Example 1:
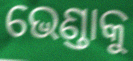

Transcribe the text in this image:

ଭେଣ୍ଡାକୁ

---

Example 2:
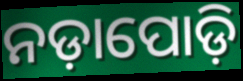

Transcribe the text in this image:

ନଡ଼ାପୋଡ଼ି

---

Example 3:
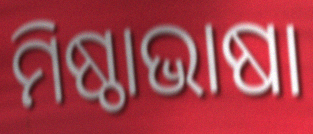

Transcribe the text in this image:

ମିଷ୍ଠାଭାଷା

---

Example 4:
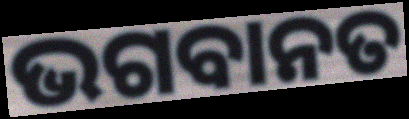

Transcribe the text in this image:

ଭଗବାନତ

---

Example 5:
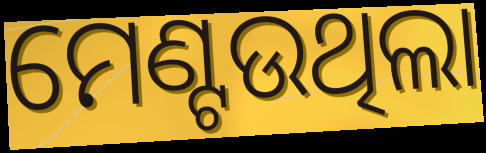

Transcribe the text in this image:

ମେଣ୍ଟଉଥିଲା